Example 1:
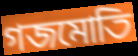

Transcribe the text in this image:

গজমোতি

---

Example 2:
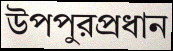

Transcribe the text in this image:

উপপুরপ্রধান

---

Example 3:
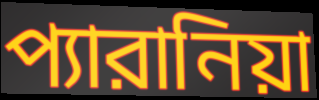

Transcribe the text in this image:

প্যারানিয়া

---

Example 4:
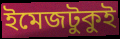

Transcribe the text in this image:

ইমেজটুকুই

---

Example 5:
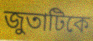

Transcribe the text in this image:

জুতাটিকে